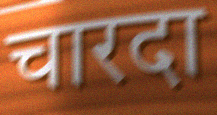
चारदा